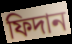
ফিদান